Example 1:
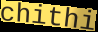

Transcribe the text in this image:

chithi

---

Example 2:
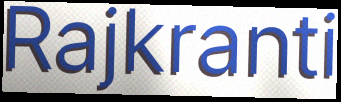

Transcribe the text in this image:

Rajkranti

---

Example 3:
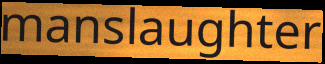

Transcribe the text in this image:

manslaughter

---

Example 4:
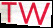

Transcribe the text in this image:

TW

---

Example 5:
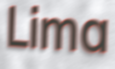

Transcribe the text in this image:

Lima